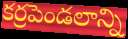
కర్రపెండలాన్ని